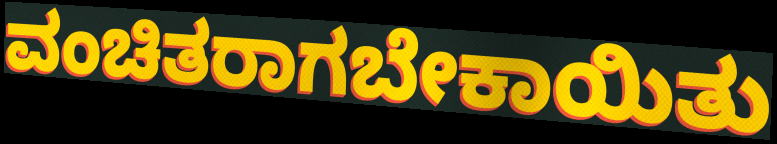
ವಂಚಿತರಾಗಬೇಕಾಯಿತು